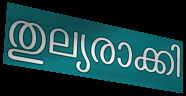
തുല്യരാക്കി